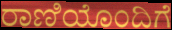
ರಾಣಿಯೊಂದಿಗೆ